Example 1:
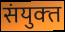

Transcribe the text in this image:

संयुक्‍त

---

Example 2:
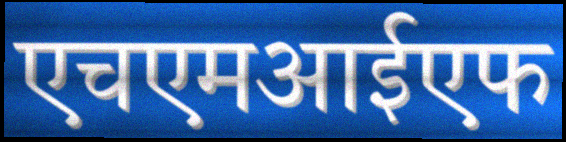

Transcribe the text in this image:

एचएमआईएफ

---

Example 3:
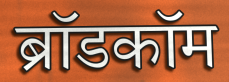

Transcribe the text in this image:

ब्रॉडकॉम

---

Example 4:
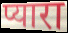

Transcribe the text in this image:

प्‍यारा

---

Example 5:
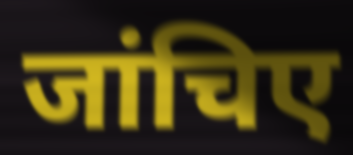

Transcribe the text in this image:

जांचिए